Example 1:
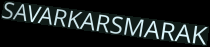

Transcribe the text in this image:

SAVARKARSMARAK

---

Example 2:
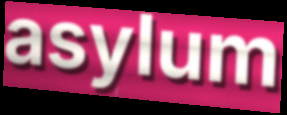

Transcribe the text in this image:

asylum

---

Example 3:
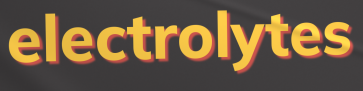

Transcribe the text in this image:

electrolytes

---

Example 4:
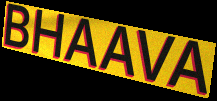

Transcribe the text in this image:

BHAAVA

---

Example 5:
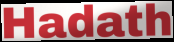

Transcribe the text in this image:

Hadath